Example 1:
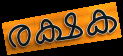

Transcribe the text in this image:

രക്ഷക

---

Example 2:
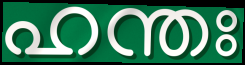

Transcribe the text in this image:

ഹന്തഃ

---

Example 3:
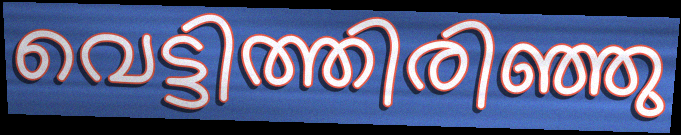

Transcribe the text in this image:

വെട്ടിത്തിരിഞ്ഞു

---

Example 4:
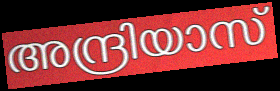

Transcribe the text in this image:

അന്ദ്രിയാസ്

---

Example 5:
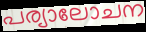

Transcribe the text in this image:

പര്യാലോചന